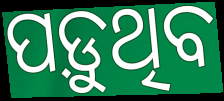
ପଡ଼ୁଥିବ